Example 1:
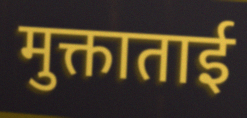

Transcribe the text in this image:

मुक्ताताई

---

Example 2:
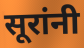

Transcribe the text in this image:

सूरांनी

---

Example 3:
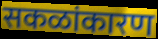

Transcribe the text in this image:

सकळांकारण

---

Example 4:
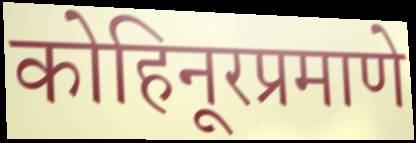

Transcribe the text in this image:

कोहिनूरप्रमाणे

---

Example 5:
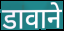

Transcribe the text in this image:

डावाने